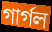
গার্গল